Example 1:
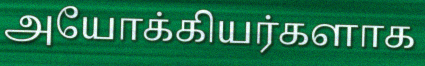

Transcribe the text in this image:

அயோக்கியர்களாக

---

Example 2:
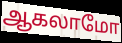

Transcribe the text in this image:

ஆகலாமோ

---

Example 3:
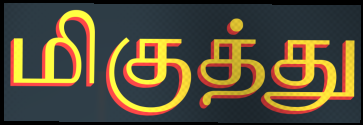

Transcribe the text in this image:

மிகுத்து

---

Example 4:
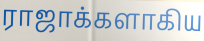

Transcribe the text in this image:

ராஜாக்களாகிய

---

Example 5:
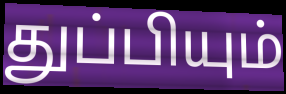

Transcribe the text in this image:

துப்பியும்